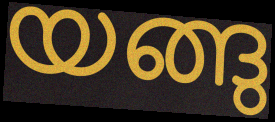
യങ്ങു